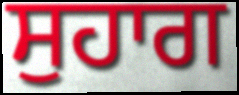
ਸੁਹਾਗ